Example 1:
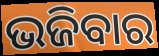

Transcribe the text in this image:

ଭଜିବାର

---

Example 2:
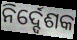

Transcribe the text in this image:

ନିର୍ଦ୍ଦେଶକ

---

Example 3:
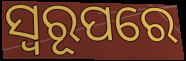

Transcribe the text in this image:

ସ୍ଵରୂପରେ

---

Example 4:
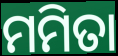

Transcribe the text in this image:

ମମିତା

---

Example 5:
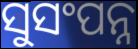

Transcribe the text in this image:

ସୁସଂପନ୍ନ